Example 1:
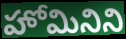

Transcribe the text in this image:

హోమినిని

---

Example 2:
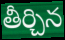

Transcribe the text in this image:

తీర్చిన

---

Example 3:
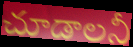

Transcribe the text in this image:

చూడాలనీ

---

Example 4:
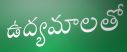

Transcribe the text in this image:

ఉద్యమాలతో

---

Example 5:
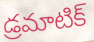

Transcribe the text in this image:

డ్రమాటిక్